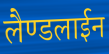
लैण्डलाईन